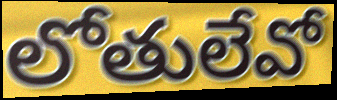
లోతులేవో